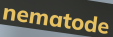
nematode